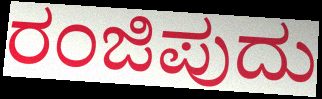
ರಂಜಿಪುದು